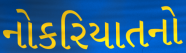
નોકરિયાતનો